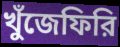
খুঁজেফিরি